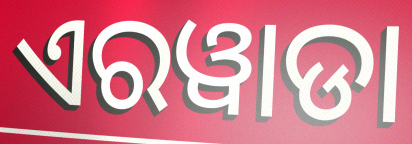
ଏରୱାଡା